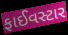
ફાઈવસ્ટાર